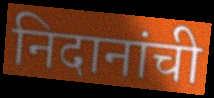
निदानांची